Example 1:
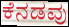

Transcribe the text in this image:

ಕೆನಡವು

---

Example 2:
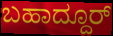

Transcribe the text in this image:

ಬಹಾದ್ದೂರ್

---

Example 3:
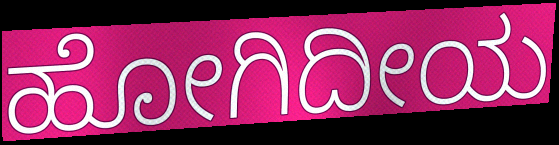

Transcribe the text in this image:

ಹೋಗಿದೀಯ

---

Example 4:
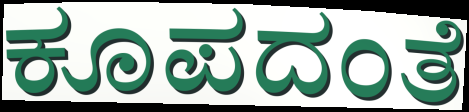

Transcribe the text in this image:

ಕೂಪದಂತೆ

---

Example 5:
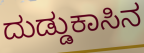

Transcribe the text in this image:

ದುಡ್ಡುಕಾಸಿನ